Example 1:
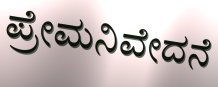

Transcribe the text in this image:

ಪ್ರೇಮನಿವೇದನೆ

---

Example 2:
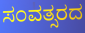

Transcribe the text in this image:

ಸಂವತ್ಸರದ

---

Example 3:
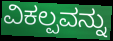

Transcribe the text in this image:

ವಿಕಲ್ಪವನ್ನು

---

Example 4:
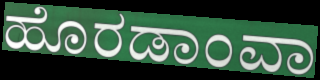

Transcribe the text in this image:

ಹೊರಡಾಂವಾ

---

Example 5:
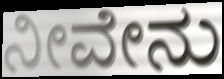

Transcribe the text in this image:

ನೀವೇನು